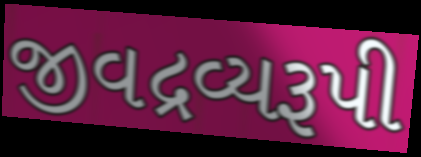
જીવદ્રવ્યરૂપી